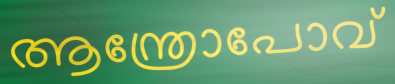
ആന്ത്രോപോവ്